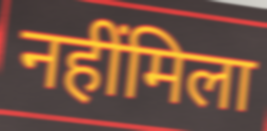
नहींमिला